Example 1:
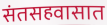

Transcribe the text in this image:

संतसहवासात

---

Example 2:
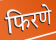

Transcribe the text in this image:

फिरणे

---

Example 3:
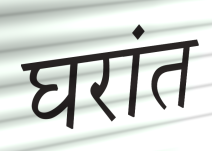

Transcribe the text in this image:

घरांत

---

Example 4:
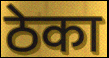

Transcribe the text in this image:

ठेका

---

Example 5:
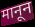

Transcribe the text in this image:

मानून